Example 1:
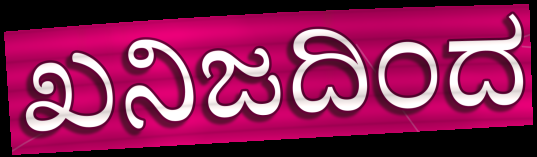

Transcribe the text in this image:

ಖನಿಜದಿಂದ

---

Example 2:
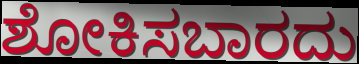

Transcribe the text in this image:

ಶೋಕಿಸಬಾರದು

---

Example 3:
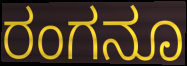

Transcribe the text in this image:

ರಂಗನೂ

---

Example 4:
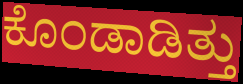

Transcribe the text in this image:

ಕೊಂಡಾಡಿತ್ತು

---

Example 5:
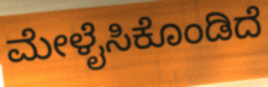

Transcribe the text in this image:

ಮೇಳೈಸಿಕೊಂಡಿದೆ